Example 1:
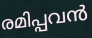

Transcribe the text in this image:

രമിപ്പവൻ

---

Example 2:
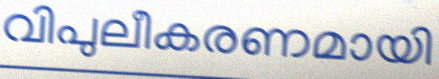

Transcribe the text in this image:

വിപുലീകരണമായി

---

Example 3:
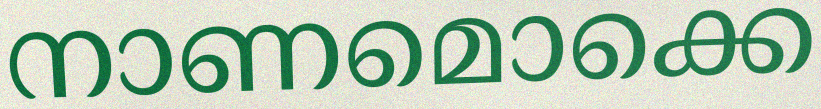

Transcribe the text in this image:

നാണമൊക്കെ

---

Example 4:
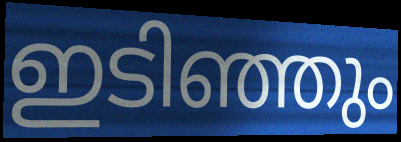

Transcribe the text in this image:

ഇടിഞ്ഞും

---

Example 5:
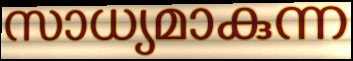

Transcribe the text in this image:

സാധ്യമാകുന്ന